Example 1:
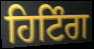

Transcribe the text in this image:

ਹਿਟਿੰਗ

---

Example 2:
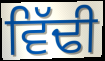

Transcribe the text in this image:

ਵਿੱਢੀ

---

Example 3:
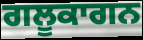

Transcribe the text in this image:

ਗਲੂਕਾਗਨ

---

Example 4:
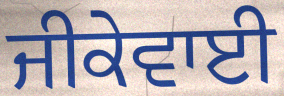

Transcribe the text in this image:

ਜੀਕੇਵਾਈ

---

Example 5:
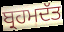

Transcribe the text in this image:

ਬ੍ਰਹਮਦੱਤ